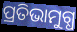
ପ୍ରତିଭାମୁଗ୍ଧ